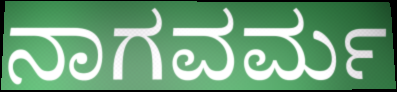
ನಾಗವರ್ಮ